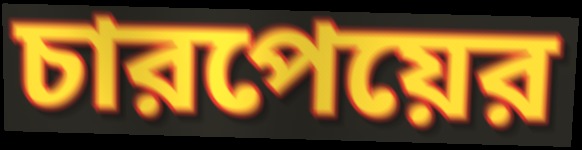
চারপেয়ের